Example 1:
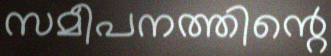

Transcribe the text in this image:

സമീപനത്തിന്റെ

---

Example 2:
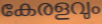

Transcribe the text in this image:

കേരളവും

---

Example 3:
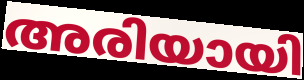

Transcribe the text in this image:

അരിയായി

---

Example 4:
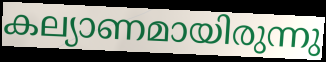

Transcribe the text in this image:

കല്യാണമായിരുന്നു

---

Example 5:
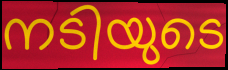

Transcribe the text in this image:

നടിയുടെ